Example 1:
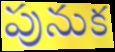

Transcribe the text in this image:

పునుక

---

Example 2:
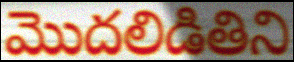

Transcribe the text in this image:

మొదలిడితిని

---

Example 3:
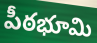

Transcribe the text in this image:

పీఠభూమి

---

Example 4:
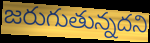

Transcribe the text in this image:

జరుగుతున్నదని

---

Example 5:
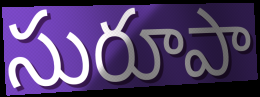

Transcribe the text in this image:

సురూపా